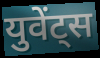
युवेंट्स